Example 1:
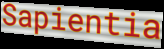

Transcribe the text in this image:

Sapientia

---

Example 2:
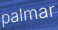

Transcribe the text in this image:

palmar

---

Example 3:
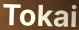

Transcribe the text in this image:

Tokai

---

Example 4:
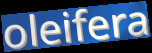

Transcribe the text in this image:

oleifera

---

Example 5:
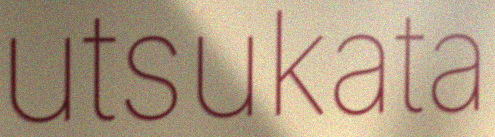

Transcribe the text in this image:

utsukata